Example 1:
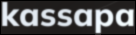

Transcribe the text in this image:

kassapa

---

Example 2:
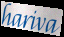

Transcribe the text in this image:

hariva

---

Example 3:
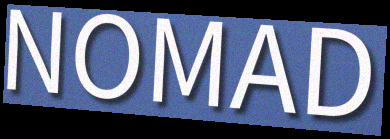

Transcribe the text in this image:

NOMAD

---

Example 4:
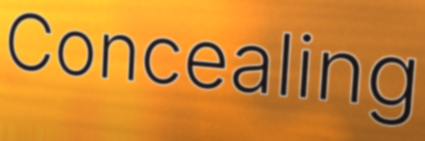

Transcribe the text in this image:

Concealing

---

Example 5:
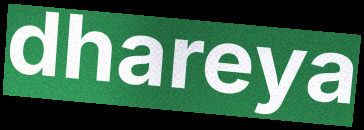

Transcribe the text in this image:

dhareya